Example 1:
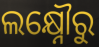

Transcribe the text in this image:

ଲକ୍ଷ୍ନୌରୁ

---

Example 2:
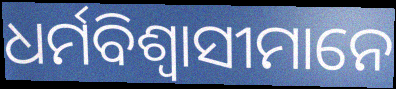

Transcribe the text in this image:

ଧର୍ମବିଶ୍ଵାସୀମାନେ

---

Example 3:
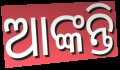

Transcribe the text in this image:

ଆଙ୍କନ୍ତି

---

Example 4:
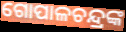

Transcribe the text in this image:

ଗୋପାଳଚନ୍ଦ୍ରଙ୍କ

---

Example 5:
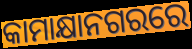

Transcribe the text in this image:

କାମାକ୍ଷାନଗରରେ